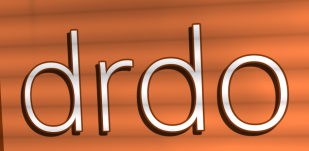
drdo